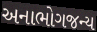
અનાભોગજન્ય